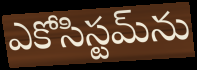
ఎకోసిస్టమ్‌ను